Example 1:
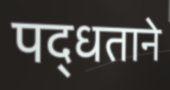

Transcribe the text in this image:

पद्धताने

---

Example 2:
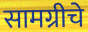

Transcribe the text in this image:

सामग्रीचे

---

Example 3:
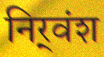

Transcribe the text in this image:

निर्वंश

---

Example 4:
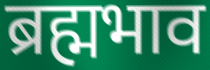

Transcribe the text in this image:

ब्रह्मभाव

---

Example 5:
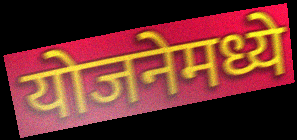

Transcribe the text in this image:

योजनेमध्ये